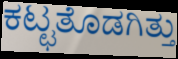
ಕಟ್ಟತೊಡಗಿತ್ತು